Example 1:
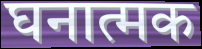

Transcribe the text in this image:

घनात्मक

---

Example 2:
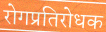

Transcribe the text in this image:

रोगप्रतिरोधक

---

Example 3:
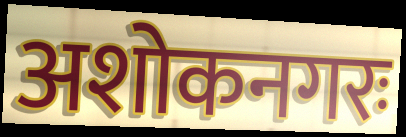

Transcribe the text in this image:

अशोकनगरः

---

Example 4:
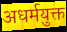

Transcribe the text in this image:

अधर्मयुक्त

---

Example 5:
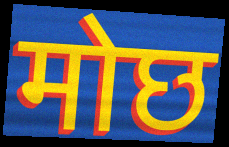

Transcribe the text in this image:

मोछ